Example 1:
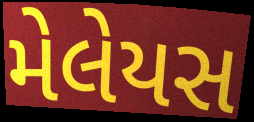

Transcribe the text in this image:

મેલેયસ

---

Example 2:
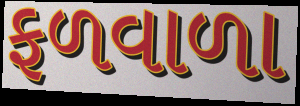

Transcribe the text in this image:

ફળવાળા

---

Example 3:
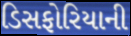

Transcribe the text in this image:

ડિસફોરિયાની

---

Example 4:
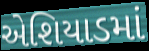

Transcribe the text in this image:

એશિયાડમાં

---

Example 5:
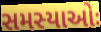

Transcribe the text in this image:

સમસ્યાઓઃ